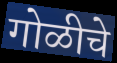
गोळीचे